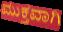
ಮುಕ್ತವಾಗಿ